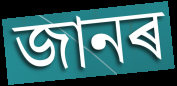
জানৰ